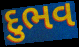
દુભવ